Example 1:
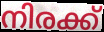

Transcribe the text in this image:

നിരക്ക്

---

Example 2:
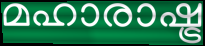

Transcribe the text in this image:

മഹാരാഷ്ട്ര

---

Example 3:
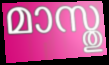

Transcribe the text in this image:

മാസ്തു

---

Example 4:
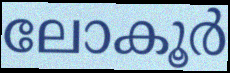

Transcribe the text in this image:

ലോകൂർ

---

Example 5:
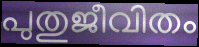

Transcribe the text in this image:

പുതുജീവിതം